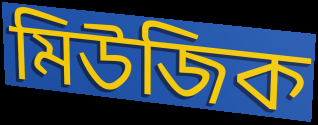
মিউজিক